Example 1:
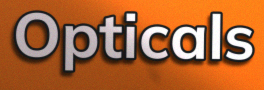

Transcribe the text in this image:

Opticals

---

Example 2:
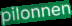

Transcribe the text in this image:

pilonnen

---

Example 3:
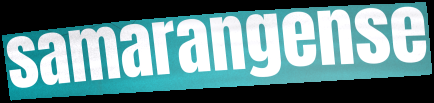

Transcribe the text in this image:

samarangense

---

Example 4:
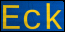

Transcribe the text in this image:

Eck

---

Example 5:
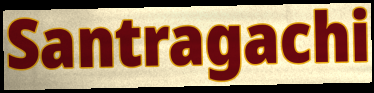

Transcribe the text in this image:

Santragachi